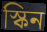
স্কিন